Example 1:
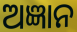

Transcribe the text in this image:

ଅଜ୍ଞାନ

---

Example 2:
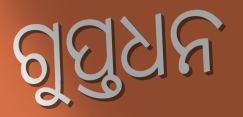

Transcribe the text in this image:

ଗୁପ୍ତଧନ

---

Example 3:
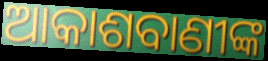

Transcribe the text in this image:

ଆକାଶବାଣୀଙ୍କ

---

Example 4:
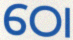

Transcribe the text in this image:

ଠୋ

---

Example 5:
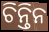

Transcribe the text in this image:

ଚିନ୍ତିନ